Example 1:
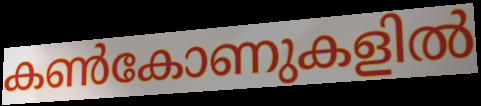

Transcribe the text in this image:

കൺകോണുകളിൽ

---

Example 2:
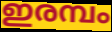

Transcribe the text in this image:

ഇരമ്പം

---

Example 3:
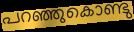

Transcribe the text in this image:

പറഞ്ഞുകൊണ്ടു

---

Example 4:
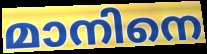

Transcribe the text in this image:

മാനിനെ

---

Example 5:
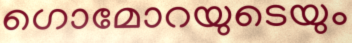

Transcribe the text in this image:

ഗൊമോറയുടെയും